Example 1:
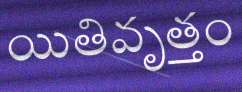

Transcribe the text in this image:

యితివృత్తం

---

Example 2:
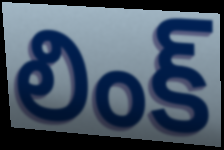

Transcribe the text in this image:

లింక్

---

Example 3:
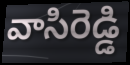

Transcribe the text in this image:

వాసిరెడ్డి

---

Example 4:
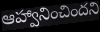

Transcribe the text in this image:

ఆహ్వానించిందని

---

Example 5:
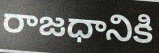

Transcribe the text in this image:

రాజధానికి